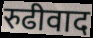
रुढीवाद